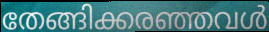
തേങ്ങിക്കരഞ്ഞവൾ